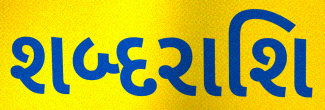
શબ્દરાશિ